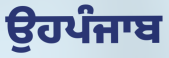
ਉਹਪੰਜਾਬ